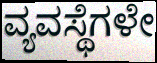
ವ್ಯವಸ್ಥೆಗಳೇ